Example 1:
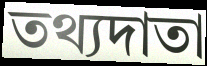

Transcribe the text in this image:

তথ্যদাতা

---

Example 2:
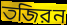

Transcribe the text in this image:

তজিরন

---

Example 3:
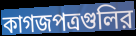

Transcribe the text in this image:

কাগজপত্রগুলির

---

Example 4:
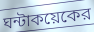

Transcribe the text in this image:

ঘন্টাকয়েকের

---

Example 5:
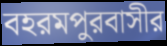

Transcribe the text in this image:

বহরমপুরবাসীর